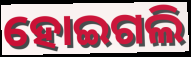
ହୋଇଗଲି